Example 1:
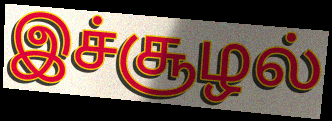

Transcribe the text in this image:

இச்சூழல்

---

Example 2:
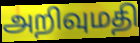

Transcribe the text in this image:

அறிவுமதி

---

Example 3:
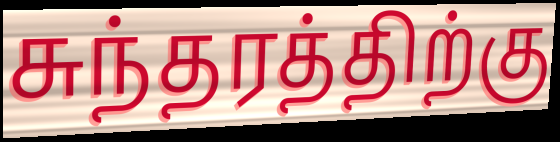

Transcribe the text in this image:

சுந்தரத்திற்கு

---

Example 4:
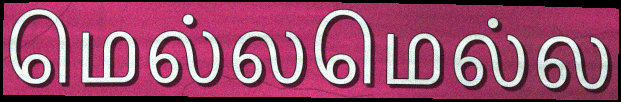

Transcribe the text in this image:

மெல்லமெல்ல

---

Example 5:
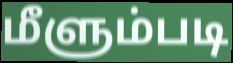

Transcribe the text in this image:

மீளும்படி